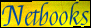
Netbooks